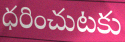
ధరించుటకు